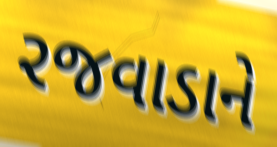
રજવાડાને